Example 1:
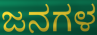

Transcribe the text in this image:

ಜನಗಳ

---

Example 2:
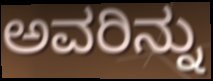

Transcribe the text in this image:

ಅವರಿನ್ನು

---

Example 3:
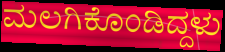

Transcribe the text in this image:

ಮಲಗಿಕೊಂಡಿದ್ದಳು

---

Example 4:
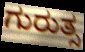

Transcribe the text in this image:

ಗುರುತ್ಸ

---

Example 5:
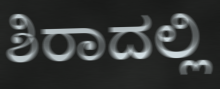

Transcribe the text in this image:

ಶಿರಾದಲ್ಲಿ